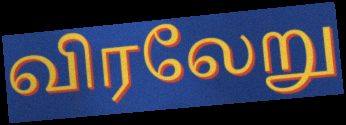
விரலேறு